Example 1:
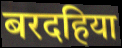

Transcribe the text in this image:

बरदहिया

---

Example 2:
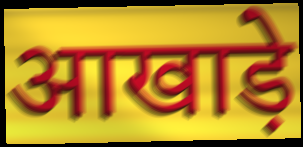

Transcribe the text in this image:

आखाड़े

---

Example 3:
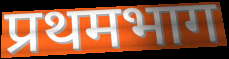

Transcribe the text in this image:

प्रथमभाग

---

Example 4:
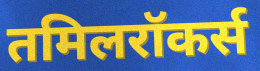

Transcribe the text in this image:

तमिलरॉकर्स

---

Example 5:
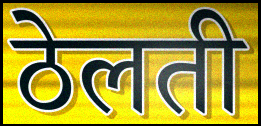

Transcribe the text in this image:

ठेलती